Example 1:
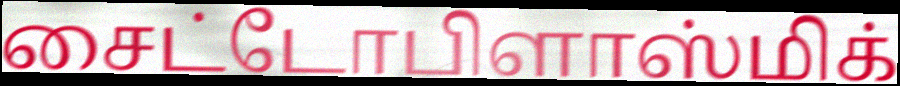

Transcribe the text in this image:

சைட்டோபிளாஸ்மிக்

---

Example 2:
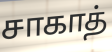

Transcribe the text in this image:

சாகாத்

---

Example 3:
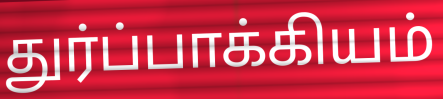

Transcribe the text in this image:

துர்ப்பாக்கியம்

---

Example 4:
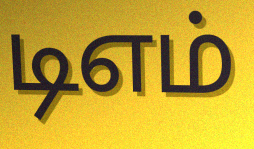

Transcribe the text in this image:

டிஎம்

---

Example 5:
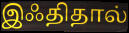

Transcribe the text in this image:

இஃதிதால்